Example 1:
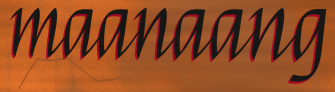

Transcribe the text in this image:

maanaang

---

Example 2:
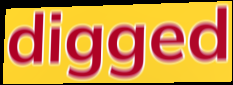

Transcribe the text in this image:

digged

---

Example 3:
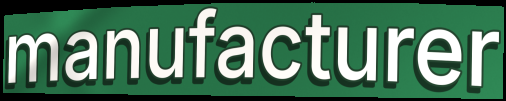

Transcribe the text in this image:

manufacturer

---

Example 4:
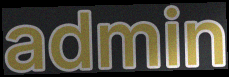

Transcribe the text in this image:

admin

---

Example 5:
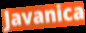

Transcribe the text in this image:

Javanica